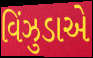
વિંઝુડાએ